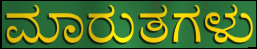
ಮಾರುತಗಳು